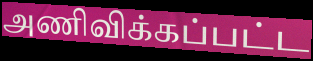
அணிவிக்கப்பட்ட